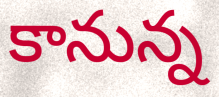
కానున్న